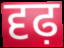
दृढ़